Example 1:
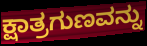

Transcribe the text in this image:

ಕ್ಷಾತ್ರಗುಣವನ್ನು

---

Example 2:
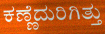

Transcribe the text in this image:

ಕಣ್ಣೆದುರಿಗಿತ್ತು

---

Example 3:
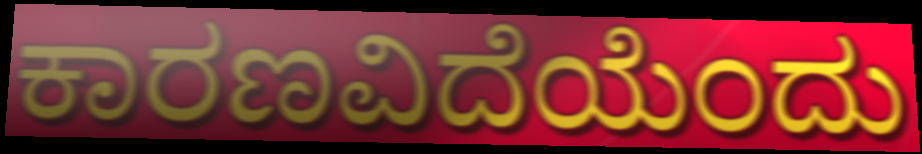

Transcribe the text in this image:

ಕಾರಣವಿದೆಯೆಂದು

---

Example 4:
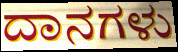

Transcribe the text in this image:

ದಾನಗಳು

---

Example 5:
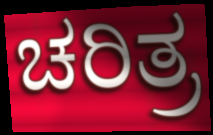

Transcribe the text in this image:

ಚರಿತ್ರ